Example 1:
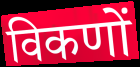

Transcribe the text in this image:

विकणों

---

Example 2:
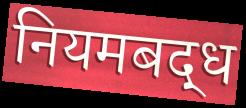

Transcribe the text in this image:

नियमबद्ध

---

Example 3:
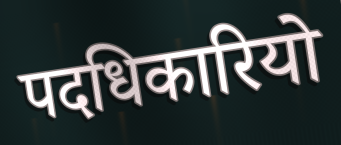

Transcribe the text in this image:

पदधिकारियो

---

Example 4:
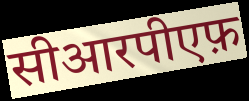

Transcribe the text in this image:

सीआरपीएफ़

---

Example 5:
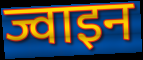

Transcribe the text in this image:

ज्‍वाइन